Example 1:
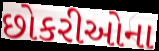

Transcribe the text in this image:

છોકરીઓના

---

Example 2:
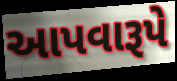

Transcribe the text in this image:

આપવારૂપે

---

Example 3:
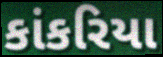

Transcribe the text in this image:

કાંકરિયા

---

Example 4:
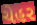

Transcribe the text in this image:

ચેહર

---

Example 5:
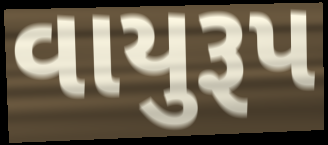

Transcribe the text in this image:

વાયુરૂપ